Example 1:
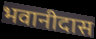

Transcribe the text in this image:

भवानीदास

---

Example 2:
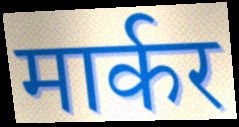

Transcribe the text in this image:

मार्कर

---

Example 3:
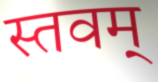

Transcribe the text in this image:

स्तवम्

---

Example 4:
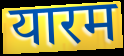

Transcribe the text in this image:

यारम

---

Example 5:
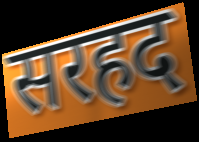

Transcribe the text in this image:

सरहद